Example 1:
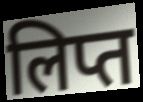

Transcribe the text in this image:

लिप्त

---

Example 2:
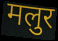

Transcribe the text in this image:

मलुर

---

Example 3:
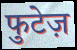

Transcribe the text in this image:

फुटेज़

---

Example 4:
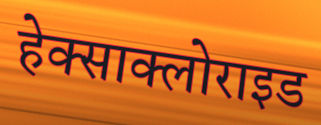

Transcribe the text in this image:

हेक्साक्लोराइड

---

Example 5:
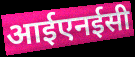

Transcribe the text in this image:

आईएनईसी